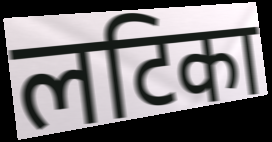
लटिका